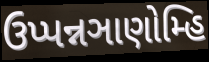
ઉપ્પન્નઞાણોમ્હિ